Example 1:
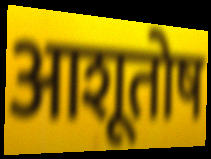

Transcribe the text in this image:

आशूतोष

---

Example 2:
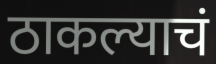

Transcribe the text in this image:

ठाकल्याचं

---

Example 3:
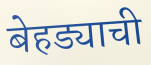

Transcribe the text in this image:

बेहड्याची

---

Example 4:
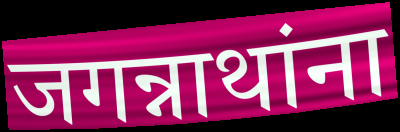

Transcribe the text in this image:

जगन्नाथांना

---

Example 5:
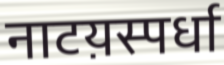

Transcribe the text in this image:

नाटय़स्पर्धा